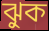
ঝুক